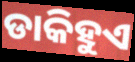
ଡାକିହୁଏ